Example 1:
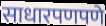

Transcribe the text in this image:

साधारपणपणे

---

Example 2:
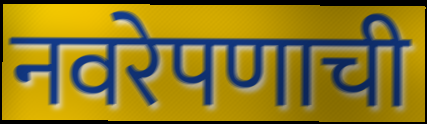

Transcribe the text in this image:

नवरेपणाची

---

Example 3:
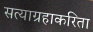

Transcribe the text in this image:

सत्याग्रहाकरिता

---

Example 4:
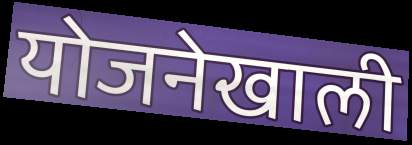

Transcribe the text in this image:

योजनेखाली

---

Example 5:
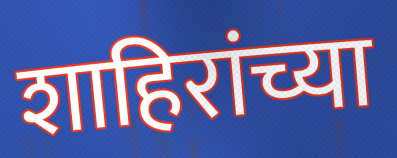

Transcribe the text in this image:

शाहिरांच्या